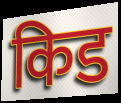
किड